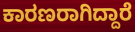
ಕಾರಣರಾಗಿದ್ದಾರೆ